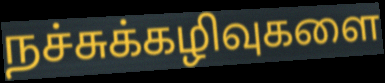
நச்சுக்கழிவுகளை